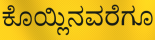
ಕೊಯ್ಲಿನವರೆಗೂ